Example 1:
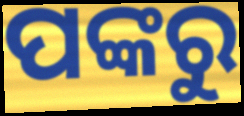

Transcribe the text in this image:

ପଙ୍କରୁ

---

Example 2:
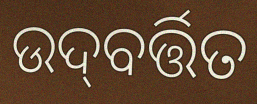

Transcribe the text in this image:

ଉଦ୍‌ବର୍ତ୍ତିତ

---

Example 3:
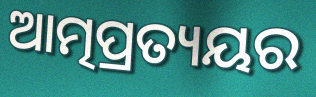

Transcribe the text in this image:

ଆତ୍ମପ୍ରତ୍ୟୟର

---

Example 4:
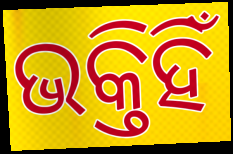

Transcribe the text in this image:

ଭକ୍ତିହିଁ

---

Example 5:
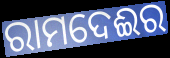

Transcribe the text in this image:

ରାମଦେଈର